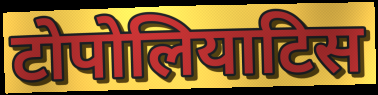
टोपोलियाटिस